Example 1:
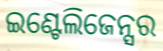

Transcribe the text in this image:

ଇଣ୍ଟେଲିଜେନ୍ସର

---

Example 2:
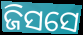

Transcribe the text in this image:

ଜିସସେ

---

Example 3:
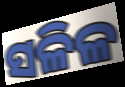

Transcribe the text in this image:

ସଳିଳ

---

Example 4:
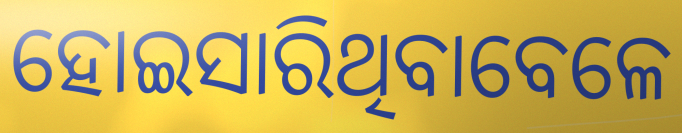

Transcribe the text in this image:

ହୋଇସାରିଥିବାବେଳେ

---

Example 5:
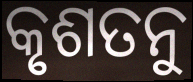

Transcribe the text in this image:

କୃଶତନୁ